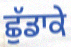
ਛੁੱਡਾਕੇ